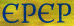
EPEP